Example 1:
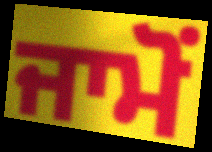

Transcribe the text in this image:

ਜਾਮੋਂ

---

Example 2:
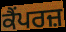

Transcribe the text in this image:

ਕੈਂਪਰਜ਼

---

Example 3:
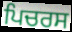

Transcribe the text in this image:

ਪਿਚਰਸ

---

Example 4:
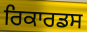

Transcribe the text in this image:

ਰਿਕਾਰਡਸ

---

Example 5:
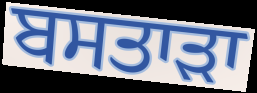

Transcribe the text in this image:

ਬਸਤਾੜਾ